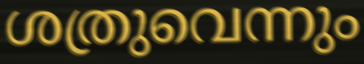
ശത്രുവെന്നും